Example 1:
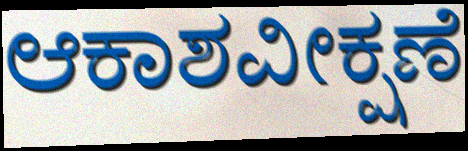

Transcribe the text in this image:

ಆಕಾಶವೀಕ್ಷಣೆ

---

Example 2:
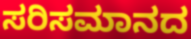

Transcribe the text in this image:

ಸರಿಸಮಾನದ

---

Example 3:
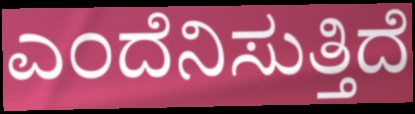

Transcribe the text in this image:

ಎಂದೆನಿಸುತ್ತಿದೆ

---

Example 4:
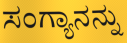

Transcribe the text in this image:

ಸಂಗ್ಯಾನನ್ನು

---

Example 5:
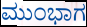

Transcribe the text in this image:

ಮುಂಭಾಗ